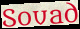
Souad